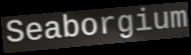
Seaborgium